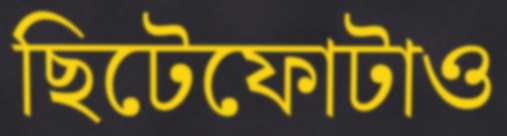
ছিটেফোটাও